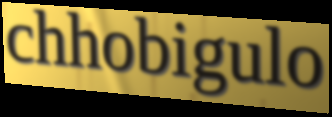
chhobigulo